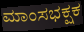
ಮಾಂಸಭಕ್ಷಕ